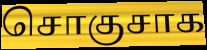
சொகுசாக